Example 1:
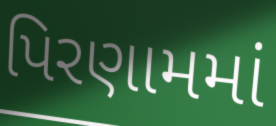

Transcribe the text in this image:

પિરણામમાં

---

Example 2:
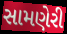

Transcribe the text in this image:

સામણેરી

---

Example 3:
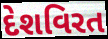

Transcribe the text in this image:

દેશવિરત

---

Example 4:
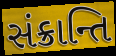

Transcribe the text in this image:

સંક્રાન્તિ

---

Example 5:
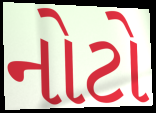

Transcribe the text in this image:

નોટો